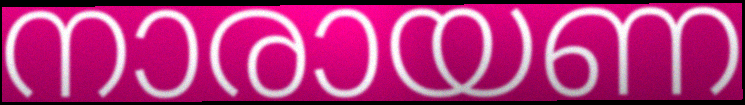
നാരായണ